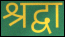
श्रद्वा